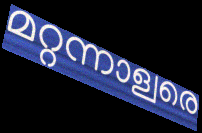
മറ്റന്നാള്വരെ